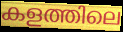
കളത്തിലെ